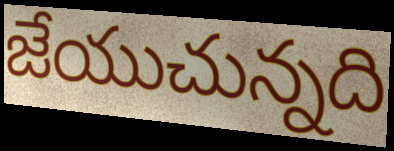
జేయుచున్నది